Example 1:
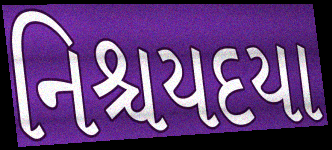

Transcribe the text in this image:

નિશ્ચયદયા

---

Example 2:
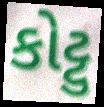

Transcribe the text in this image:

કોટ્ટુ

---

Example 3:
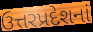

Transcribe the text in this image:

ઉત્તરપ્રદેશનાં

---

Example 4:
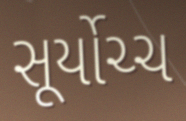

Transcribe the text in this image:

સૂર્યોચ્ચ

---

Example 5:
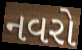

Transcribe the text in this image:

નવરો